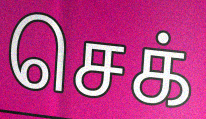
செக்